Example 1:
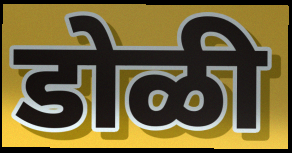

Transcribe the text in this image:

डोळी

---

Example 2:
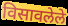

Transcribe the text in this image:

विसावलेले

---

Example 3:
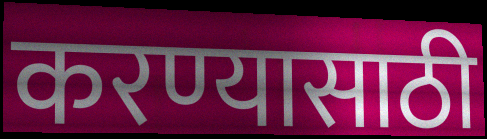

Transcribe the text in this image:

करण्‍यासाठी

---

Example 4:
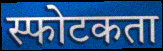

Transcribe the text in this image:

स्फोटकता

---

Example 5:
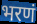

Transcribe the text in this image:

भरणं